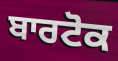
ਬਾਰਟੋਕ